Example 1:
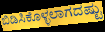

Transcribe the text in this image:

ಬಿಡಿಸಿಕೊಳ್ಳಲಾಗದಷ್ಟು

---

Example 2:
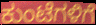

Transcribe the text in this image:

ಕುಂಟೆಗಳಿಗೆ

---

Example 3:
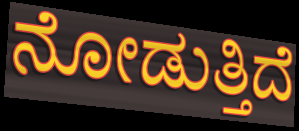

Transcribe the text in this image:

ನೋಡುತ್ತಿದೆ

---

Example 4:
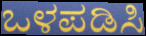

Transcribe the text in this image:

ಒಳಪಡಿಸಿ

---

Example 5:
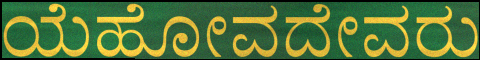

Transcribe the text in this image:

ಯೆಹೋವದೇವರು